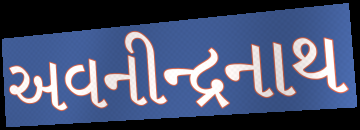
અવનીન્દ્રનાથ